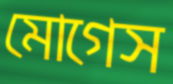
মোগেস